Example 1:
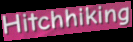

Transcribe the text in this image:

Hitchhiking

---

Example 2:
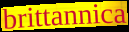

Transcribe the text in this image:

brittannica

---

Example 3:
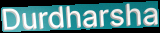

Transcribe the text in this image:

Durdharsha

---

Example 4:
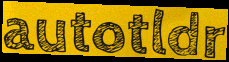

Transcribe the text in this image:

autotldr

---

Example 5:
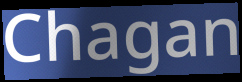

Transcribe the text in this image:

Chagan